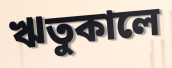
ঋতুকালে